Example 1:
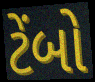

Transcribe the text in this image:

ટેંબો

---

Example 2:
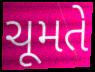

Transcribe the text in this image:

ચૂમતે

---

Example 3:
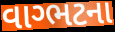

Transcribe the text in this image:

વાગ્ભટના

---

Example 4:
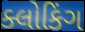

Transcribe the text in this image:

ક્લોકિંગ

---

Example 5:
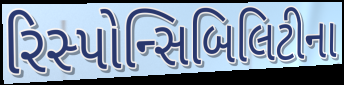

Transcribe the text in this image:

રિસ્પોન્સિબિલિટીના